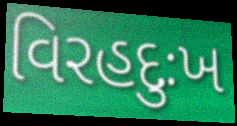
વિરહદુઃખ